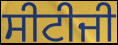
ਸੀਟੀਜੀ